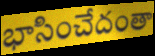
భాసించేదంతా